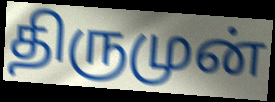
திருமுன்